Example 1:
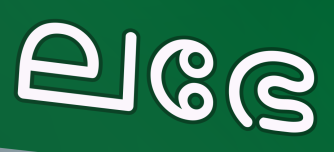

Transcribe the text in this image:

ലഭേ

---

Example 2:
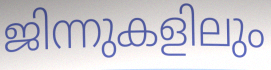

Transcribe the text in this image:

ജിന്നുകളിലും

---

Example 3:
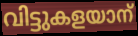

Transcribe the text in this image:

വിട്ടുകളയാന്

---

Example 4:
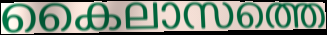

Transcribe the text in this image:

കൈലാസത്തെ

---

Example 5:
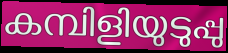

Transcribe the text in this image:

കമ്പിളിയുടുപ്പു